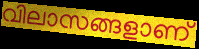
വിലാസങ്ങളാണ്